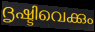
ദൃഷ്ടിവെക്കും